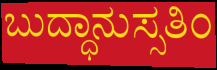
ಬುದ್ಧಾನುಸ್ಸತಿಂ